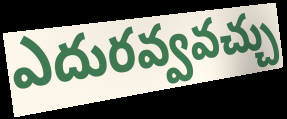
ఎదురవ్వవచ్చు